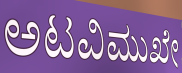
ಅಟವಿಮುಖೇ